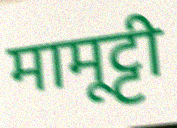
मामूट्टी